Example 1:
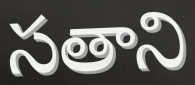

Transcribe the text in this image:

సతాని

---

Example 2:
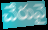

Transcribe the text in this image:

చేరువై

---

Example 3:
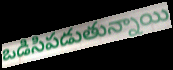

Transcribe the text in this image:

ఒడిసిపడుతున్నాయి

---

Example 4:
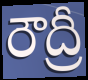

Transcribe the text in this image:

రౌద్రీ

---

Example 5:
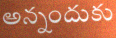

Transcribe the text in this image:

అన్నందుకు